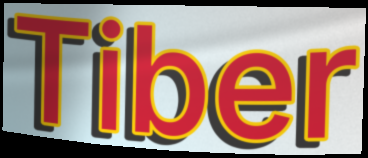
Tiber